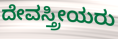
ದೇವಸ್ತ್ರೀಯರು